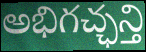
అభిగచ్ఛన్తి